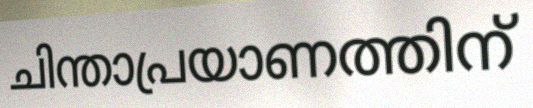
ചിന്താപ്രയാണത്തിന്